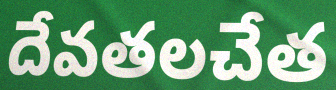
దేవతలచేత